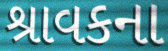
શ્રાવકના